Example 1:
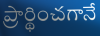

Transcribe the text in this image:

ప్రార్థించగానే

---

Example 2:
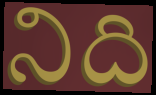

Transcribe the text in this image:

నిది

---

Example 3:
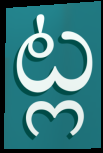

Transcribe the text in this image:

ట్ల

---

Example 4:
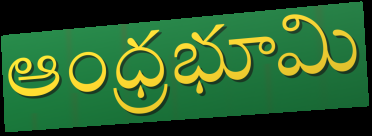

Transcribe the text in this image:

ఆంధ్రభూమి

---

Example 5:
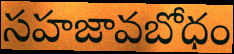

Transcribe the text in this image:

సహజావబోధం